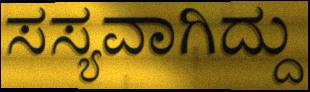
ಸಸ್ಯವಾಗಿದ್ದು